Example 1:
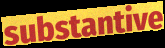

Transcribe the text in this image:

substantive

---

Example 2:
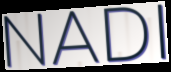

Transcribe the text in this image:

NADI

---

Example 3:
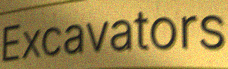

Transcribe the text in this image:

Excavators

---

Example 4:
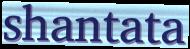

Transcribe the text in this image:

shantata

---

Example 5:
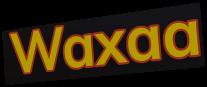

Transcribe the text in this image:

Waxaa